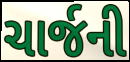
ચાર્જની